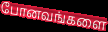
போனவங்களை